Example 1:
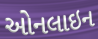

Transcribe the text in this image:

ઓનલાઇન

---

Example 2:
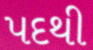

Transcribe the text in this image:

પદથી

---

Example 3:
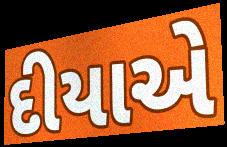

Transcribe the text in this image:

દીયાએ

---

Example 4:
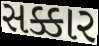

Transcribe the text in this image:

સક્કાર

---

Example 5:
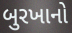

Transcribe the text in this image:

બુરખાનો